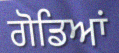
ਗੋਡਿਆਂ